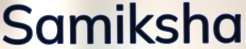
Samiksha